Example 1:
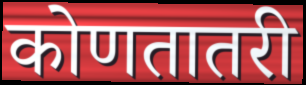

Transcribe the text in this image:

कोणतातरी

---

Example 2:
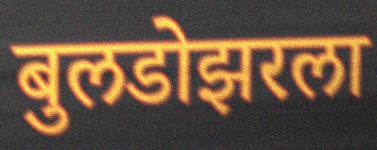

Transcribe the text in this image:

बुलडोझरला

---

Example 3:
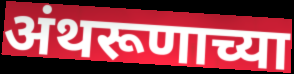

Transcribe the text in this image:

अंथरूणाच्या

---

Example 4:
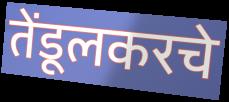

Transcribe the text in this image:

तेंडूलकरचे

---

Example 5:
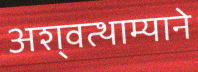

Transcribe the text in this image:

अश्वत्थाम्याने